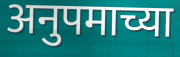
अनुपमाच्या